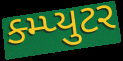
ક્મ્પ્યુટર